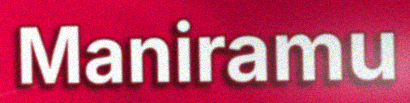
Maniramu